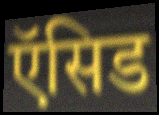
ऍसिड